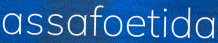
assafoetida